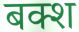
बक्श